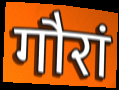
गौरां